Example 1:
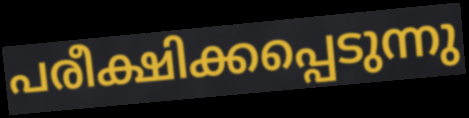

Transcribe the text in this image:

പരീക്ഷിക്കപ്പെടുന്നു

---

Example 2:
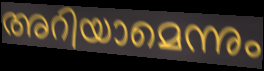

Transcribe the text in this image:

അറിയാമെന്നും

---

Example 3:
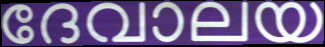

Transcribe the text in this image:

ദേവാലയ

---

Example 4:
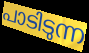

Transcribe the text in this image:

പാടിടുന്ന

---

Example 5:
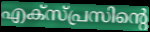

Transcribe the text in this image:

എക്സ്പ്രസിന്റെ